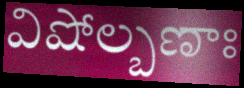
విషోల్బణాః